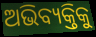
ଅଭିବ୍ୟକ୍ତିକୁ